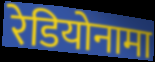
रेडियोनामा